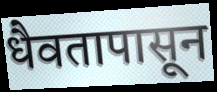
धैवतापासून